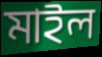
মাইল